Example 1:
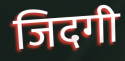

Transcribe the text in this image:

जिदगी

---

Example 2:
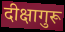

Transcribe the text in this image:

दीक्षागुरू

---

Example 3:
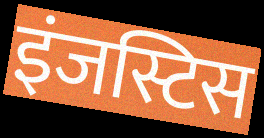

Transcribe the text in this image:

इंजस्टिस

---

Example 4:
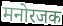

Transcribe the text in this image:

मनोरजक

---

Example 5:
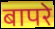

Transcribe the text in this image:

बापरे